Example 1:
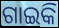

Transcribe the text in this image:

ଗାଇକି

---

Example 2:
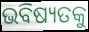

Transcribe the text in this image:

ଭବିଷ୍ୟତକୁ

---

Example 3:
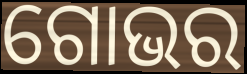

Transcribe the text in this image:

ଗୋଭର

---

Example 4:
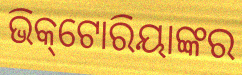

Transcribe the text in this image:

ଭିକ୍‌ଟୋରିୟାଙ୍କର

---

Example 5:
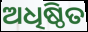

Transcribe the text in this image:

ଅଧିଷ୍ଠିତ